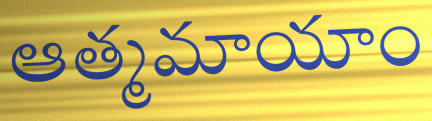
ఆత్మమాయాం